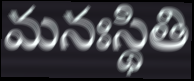
మనఃస్థితి